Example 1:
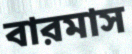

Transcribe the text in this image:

বারমাস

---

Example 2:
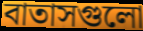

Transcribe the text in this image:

বাতাসগুলো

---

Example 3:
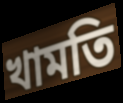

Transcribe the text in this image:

খামতি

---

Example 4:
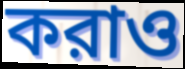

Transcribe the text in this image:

করাও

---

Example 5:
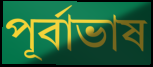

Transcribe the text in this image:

পূর্বাভাষ